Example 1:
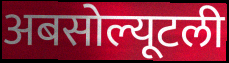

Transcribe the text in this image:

अबसोल्यूटली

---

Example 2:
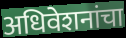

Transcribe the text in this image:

अधिवेशनांचा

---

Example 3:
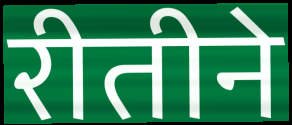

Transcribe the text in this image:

रीतीने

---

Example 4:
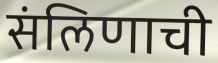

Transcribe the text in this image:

संलिणाची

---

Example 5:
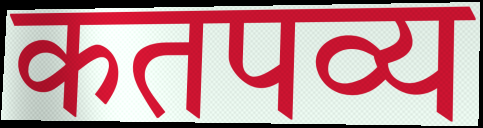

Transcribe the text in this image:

कतपव्य